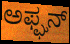
ಅಫ್ಘನ್